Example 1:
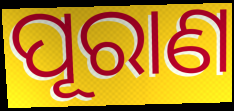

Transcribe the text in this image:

ପୂରାଣ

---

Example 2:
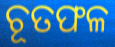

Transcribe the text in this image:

ଚୂତଫଳ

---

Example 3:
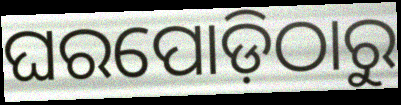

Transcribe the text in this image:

ଘରପୋଡ଼ିଠାରୁ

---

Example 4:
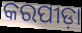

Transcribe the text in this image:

କରପୀଡ଼ା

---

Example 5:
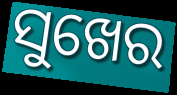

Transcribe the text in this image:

ସୁଖେର